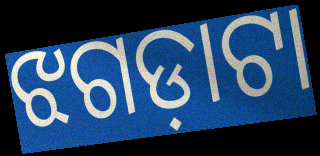
ଝଗଡ଼ାଟା